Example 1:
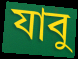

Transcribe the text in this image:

যাবু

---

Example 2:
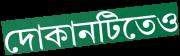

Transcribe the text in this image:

দোকানটিতেও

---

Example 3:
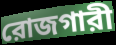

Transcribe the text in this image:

রোজগারী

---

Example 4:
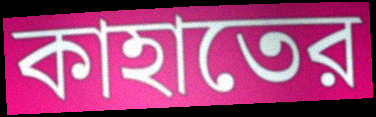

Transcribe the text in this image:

কাহাতের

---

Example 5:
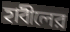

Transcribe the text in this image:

হাবীলের